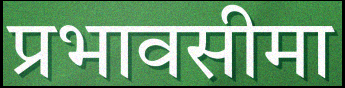
प्रभावसीमा